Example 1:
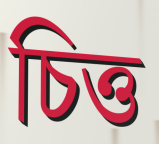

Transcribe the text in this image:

চিত্ত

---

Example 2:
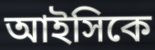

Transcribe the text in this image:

আইসিকে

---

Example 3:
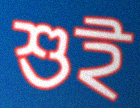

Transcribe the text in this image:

শুই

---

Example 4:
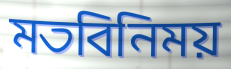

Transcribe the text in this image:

মতবিনিময়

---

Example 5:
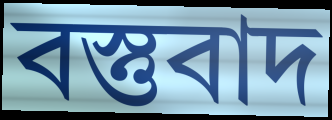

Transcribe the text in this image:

বস্তুবাদ